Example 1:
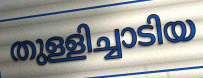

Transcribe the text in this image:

തുള്ളിച്ചാടിയ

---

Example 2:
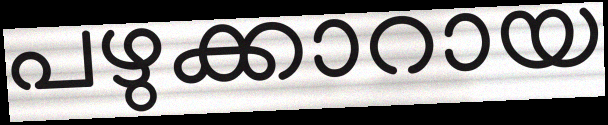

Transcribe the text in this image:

പഴുക്കാറായ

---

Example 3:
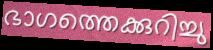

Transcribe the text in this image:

ഭാഗത്തെക്കുറിച്ചു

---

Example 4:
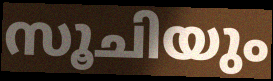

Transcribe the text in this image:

സൂചിയും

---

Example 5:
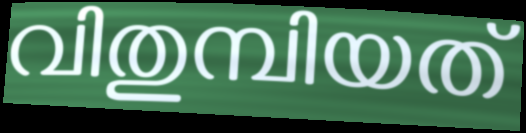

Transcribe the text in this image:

വിതുമ്പിയത്